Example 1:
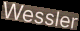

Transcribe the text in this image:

Wessler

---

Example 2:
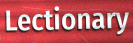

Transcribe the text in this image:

Lectionary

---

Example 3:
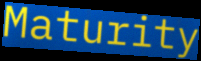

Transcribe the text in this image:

Maturity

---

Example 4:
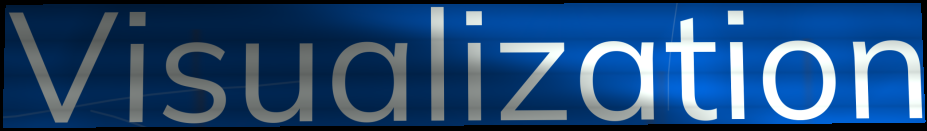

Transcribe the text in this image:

Visualization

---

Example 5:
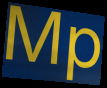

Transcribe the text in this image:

Mp